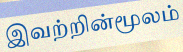
இவற்றின்மூலம்